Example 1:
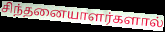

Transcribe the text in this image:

சிந்தனையாளர்களால்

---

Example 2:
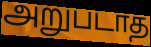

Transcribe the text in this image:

அறுபடாத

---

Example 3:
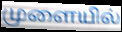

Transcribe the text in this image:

முளையில்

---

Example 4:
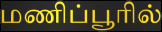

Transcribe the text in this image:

மணிப்பூரில்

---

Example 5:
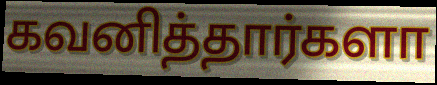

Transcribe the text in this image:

கவனித்தார்களா